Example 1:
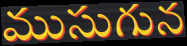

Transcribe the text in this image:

ముసుగున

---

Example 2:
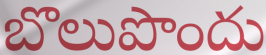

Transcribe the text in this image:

బొలుపొందు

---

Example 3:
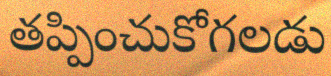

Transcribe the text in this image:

తప్పించుకోగలడు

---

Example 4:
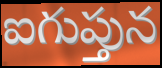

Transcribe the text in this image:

ఐగుప్తున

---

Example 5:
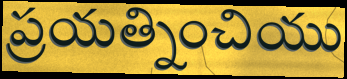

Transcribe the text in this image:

ప్రయత్నించియు